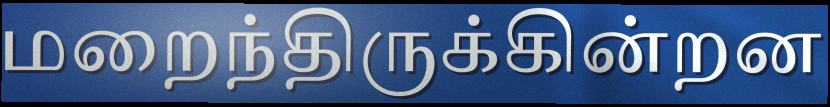
மறைந்திருக்கின்றன